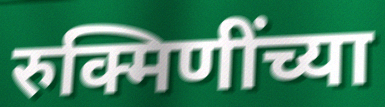
रुक्मिणींच्या